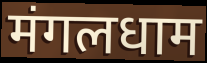
मंगलधाम